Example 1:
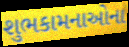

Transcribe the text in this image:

શુભકામનાઓના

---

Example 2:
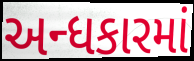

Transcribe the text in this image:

અન્ધકારમાં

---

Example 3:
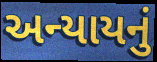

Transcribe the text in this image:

અન્યાયનું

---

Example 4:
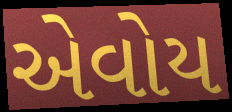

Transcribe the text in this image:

એવોય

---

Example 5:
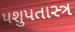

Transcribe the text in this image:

પશુપતાસ્ત્ર